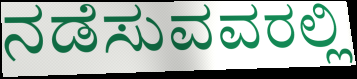
ನಡೆಸುವವರಲ್ಲಿ